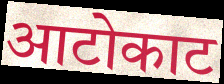
आटोकाट